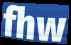
fhw